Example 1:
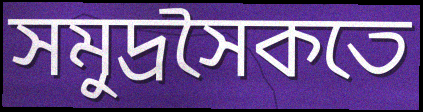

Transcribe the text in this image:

সমুদ্রসৈকতে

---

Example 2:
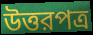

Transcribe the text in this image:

উত্তরপত্র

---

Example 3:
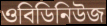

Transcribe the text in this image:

ওবিডিনিউজ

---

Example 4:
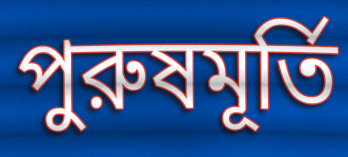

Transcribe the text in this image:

পুরুষমূর্তি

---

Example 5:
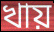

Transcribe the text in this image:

খায়